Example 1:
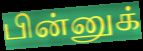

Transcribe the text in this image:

பின்னுக்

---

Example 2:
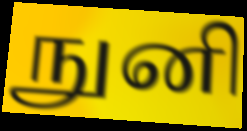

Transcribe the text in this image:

நுனி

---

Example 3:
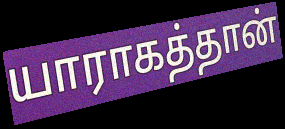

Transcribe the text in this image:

யாராகத்தான்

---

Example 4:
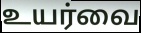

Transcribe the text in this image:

உயர்வை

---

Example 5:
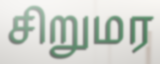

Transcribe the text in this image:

சிறுமர